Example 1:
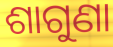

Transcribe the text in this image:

ଶାଗୁଣା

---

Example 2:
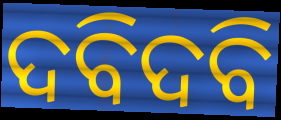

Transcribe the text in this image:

ଦବିଦବି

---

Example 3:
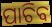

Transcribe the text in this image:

ପାଚିବ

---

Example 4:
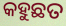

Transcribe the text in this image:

କହୁଛତ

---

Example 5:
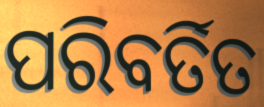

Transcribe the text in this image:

ପରିବର୍ତିତ